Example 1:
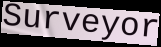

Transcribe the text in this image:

Surveyor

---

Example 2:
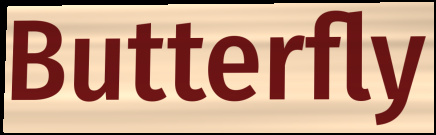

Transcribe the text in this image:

Butterfly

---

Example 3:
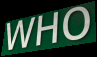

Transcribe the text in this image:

WHO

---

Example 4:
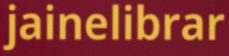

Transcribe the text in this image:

jainelibrar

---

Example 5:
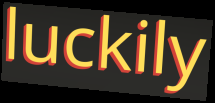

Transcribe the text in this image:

luckily